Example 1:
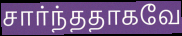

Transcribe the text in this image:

சார்ந்ததாகவே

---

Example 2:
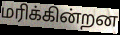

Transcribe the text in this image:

மரிக்கின்றன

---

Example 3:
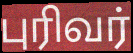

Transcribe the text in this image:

புரிவர்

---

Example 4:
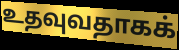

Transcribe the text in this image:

உதவுவதாகக்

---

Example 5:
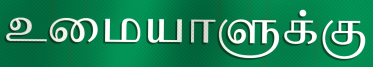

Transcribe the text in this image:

உமையாளுக்கு